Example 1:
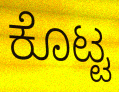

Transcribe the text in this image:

ಕೊಟ್ಟ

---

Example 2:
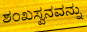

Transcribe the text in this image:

ಶಂಖಸ್ವನವನ್ನು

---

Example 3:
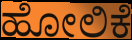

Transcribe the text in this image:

ಹೋಲಿಕೆ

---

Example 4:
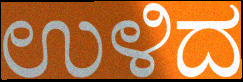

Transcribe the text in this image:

ಉಳಿದ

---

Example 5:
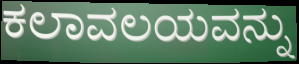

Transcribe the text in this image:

ಕಲಾವಲಯವನ್ನು